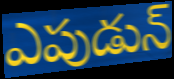
ఎపుడున్